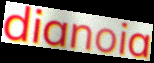
dianoia